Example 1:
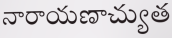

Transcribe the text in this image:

నారాయణాచ్యుత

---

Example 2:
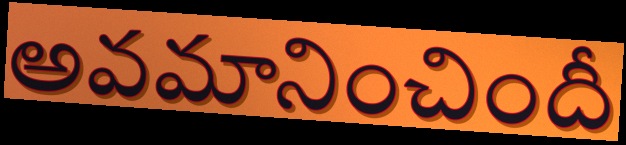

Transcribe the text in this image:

అవమానించిందీ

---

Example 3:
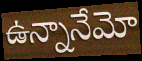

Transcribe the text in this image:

ఉన్నానేమో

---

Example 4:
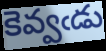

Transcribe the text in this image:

కెవ్వఁడు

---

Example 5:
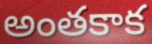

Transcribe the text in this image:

అంతకాక